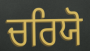
ਚਰਿਯੋ